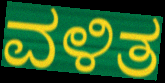
ವಳಿತ